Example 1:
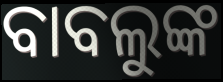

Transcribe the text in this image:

ବାବଲୁଙ୍କ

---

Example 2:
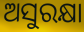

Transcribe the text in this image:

ଅସୁରକ୍ଷା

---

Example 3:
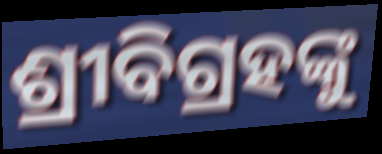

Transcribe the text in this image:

ଶ୍ରୀବିଗ୍ରହଙ୍କୁ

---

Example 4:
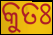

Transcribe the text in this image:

କୁତଃ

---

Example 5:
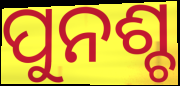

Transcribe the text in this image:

ପୁନଶ୍ଚ